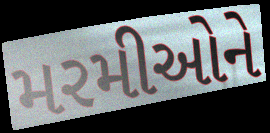
મરમીઓને